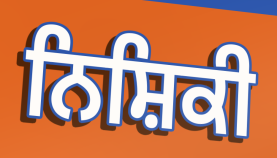
ਨਿਸ਼ਿਕੀ